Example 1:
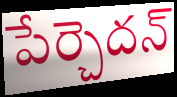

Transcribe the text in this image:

పేర్చెదన్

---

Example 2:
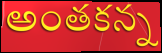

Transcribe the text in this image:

అంతకన్న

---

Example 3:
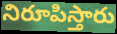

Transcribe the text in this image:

నిరూపిస్తారు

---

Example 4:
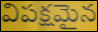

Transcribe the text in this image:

విపక్షమైన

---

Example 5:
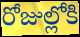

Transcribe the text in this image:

రోజుల్లోకి